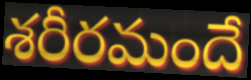
శరీరమందే